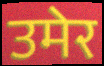
उमेर